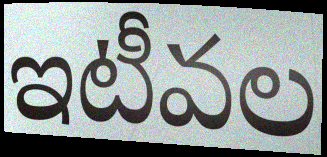
ఇటీవల